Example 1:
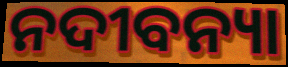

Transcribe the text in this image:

ନଦୀବନ୍ୟା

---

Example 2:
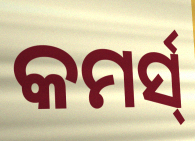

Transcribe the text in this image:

କମର୍ସ୍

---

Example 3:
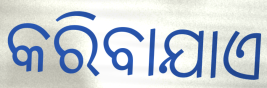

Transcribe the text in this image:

କରିବାଯାଏ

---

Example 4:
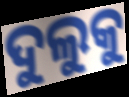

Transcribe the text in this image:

ଦୁଲୁକୁ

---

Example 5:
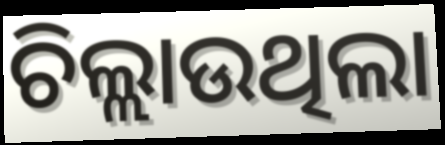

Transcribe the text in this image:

ଚିଲ୍ଲାଉଥିଲା